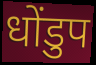
धोंडुप